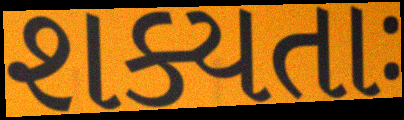
શક્યતાઃ